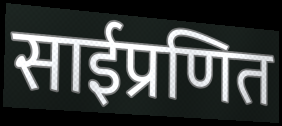
साईप्रणित